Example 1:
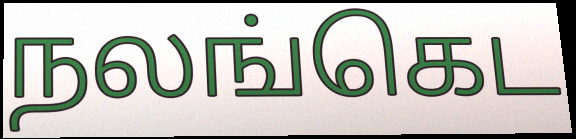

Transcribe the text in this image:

நலங்கெட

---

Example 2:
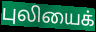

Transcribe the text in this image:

புலியைக்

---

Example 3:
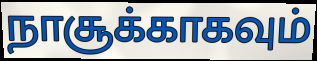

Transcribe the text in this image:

நாசூக்காகவும்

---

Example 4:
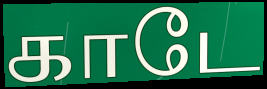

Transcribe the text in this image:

காடே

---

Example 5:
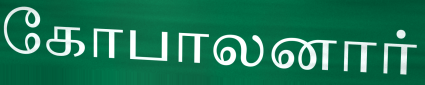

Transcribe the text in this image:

கோபாலனார்